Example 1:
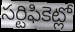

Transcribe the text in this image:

సర్టిఫికెట్లో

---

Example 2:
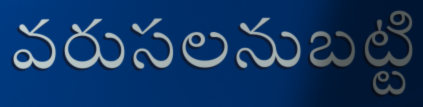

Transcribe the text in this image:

వరుసలనుబట్టి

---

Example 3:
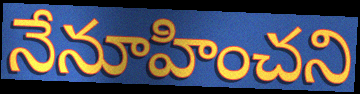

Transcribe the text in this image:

నేనూహించని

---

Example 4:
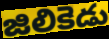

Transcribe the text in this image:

జిలికెడు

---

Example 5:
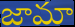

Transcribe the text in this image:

జామా